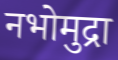
नभोमुद्रा